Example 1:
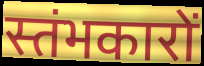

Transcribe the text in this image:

स्तंभकारों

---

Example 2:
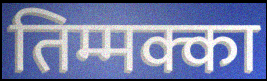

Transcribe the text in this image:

तिम्मक्का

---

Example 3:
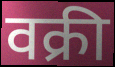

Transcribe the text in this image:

वक्री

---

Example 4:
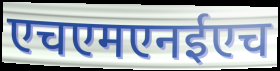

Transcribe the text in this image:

एचएमएनईएच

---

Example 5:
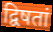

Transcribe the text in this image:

द्विषतां